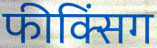
फीक्सिंग